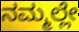
ನಮ್ಮಲ್ಲೇ